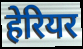
हेरियर